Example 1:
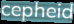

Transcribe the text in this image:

cepheid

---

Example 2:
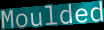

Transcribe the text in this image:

Moulded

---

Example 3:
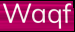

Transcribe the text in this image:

Waqf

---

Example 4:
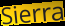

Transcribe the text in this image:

Sierra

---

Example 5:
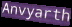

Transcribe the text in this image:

Anvyarth